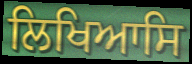
ਲਿਖਿਆਸਿ